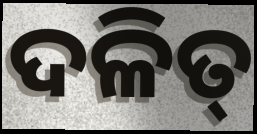
ଦଳିତ୍